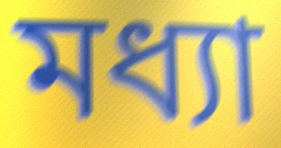
মধ্যা